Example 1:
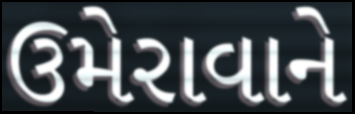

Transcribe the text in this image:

ઉમેરાવાને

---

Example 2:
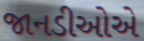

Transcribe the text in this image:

જાનડીઓએ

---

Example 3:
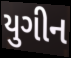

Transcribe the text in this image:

યુગીન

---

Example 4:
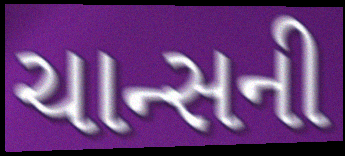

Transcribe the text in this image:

ચાન્સની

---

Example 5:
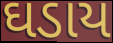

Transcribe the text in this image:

ઘડાય